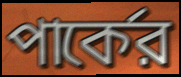
পার্কের